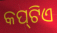
କପ୍‍ଟିଏ